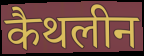
कैथलीन